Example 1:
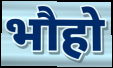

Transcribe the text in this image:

भौहो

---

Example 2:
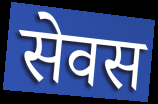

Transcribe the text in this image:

सेवस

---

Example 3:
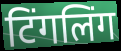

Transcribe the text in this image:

टिंगलिंग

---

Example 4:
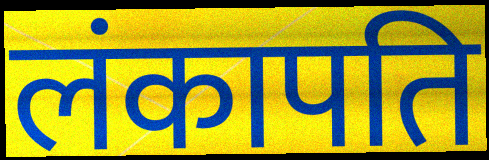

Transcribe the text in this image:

लंकापति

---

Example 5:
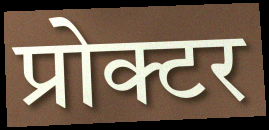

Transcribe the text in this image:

प्रोक्टर